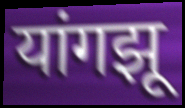
यांगझू